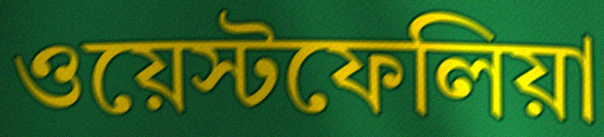
ওয়েস্টফেলিয়া